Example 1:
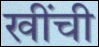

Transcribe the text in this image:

खींची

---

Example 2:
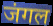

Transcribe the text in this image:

जंगल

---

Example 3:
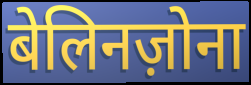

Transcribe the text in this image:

बेलिनज़ोना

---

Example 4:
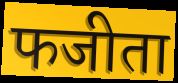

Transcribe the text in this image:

फजीता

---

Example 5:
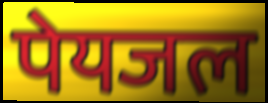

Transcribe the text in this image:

पेयजल